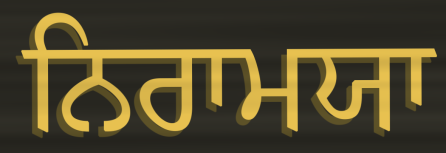
ਨਿਰਾਮਯਾ